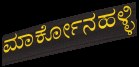
ಮಾರ್ಕೋನಹಳ್ಳಿ